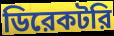
ডিরেকটরি